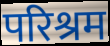
परिश्रम